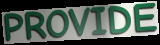
PROVIDE